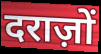
दराज़ों